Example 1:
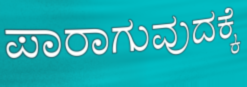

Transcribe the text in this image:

ಪಾರಾಗುವುದಕ್ಕೆ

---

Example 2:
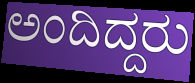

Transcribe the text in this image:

ಅಂದಿದ್ದರು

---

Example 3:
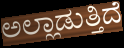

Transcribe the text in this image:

ಅಲ್ಲಾಡುತ್ತಿದೆ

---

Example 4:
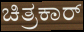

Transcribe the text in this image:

ಚಿತ್ರಕಾರ್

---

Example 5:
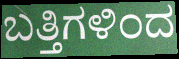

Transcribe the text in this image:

ಬತ್ತಿಗಳಿಂದ